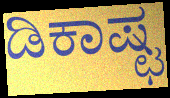
ಡಿಕಾಷ್ಟ